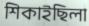
শিকাইছিলা